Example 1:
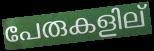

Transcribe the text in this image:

പേരുകളില്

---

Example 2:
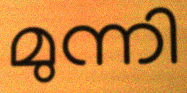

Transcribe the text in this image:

മുന്നി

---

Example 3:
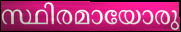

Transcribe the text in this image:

സ്ഥിരമായോരു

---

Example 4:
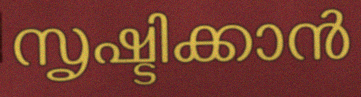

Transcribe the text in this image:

സൃഷ്ടിക്കാൻ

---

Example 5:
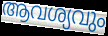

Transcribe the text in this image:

ആവശ്യവും